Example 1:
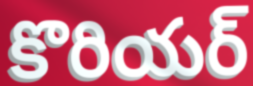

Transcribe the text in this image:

కొరియర్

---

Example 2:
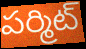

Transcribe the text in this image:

పర్మిట్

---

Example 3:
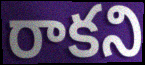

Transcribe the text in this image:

రాకని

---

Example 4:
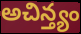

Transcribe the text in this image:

అచిన్త్యం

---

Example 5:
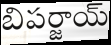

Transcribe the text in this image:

బిపర్జాయ్